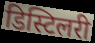
डिस्टिलरी